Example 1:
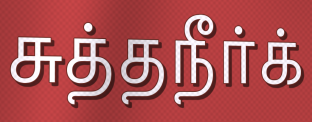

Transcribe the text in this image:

சுத்தநீர்க்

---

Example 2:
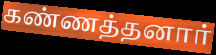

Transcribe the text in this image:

கண்ணத்தனார்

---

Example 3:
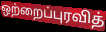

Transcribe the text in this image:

ஒற்றைப்புரவித்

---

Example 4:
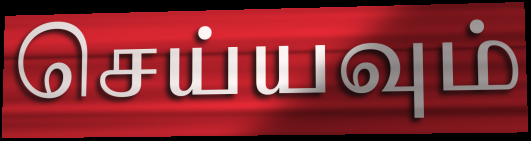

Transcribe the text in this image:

செய்யவும்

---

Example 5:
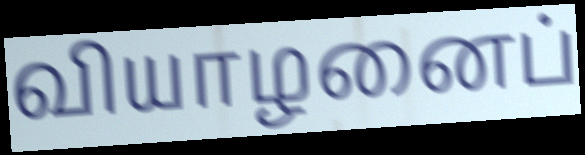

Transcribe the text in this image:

வியாழனைப்